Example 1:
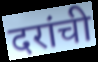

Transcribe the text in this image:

दरांची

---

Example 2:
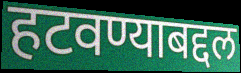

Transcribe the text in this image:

हटवण्याबद्दल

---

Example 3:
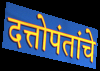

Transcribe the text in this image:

दत्तोपंतांचे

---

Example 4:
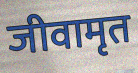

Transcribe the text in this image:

जीवामृत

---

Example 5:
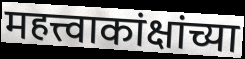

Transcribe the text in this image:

महत्त्वाकांक्षांच्या